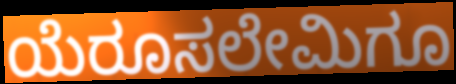
ಯೆರೂಸಲೇಮಿಗೂ